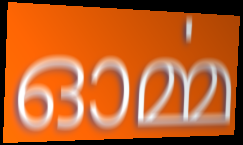
ഓൎമ്മ